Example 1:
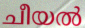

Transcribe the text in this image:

ചീയൽ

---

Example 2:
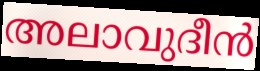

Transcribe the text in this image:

അലാവുദീൻ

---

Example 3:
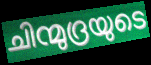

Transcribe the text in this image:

ചിന്മുദ്രയുടെ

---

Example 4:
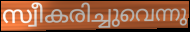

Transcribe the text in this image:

സ്വീകരിച്ചുവെന്നു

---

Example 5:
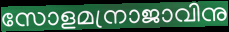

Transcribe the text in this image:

സോളമന്രാജാവിനു